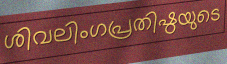
ശിവലിംഗപ്രതിഷ്ഠയുടെ